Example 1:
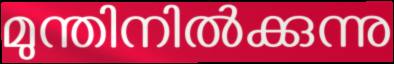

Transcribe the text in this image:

മുന്തിനിൽക്കുന്നു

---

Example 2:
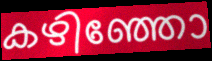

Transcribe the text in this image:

കഴിഞ്ഞോ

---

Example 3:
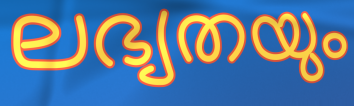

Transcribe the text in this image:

ലഭ്യതയും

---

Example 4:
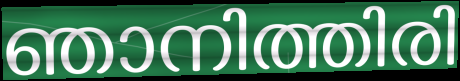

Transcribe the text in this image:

ഞാനിത്തിരി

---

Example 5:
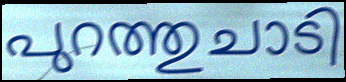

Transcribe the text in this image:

പുറത്തുചാടി